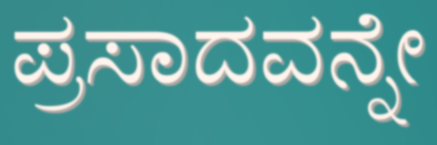
ಪ್ರಸಾದವನ್ನೇ